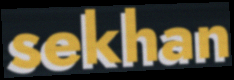
sekhan